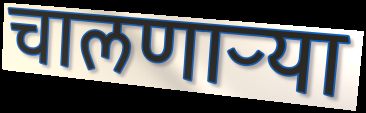
चालणाऱ्या